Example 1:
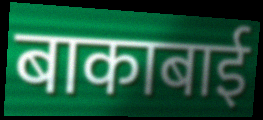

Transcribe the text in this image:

बाकाबाई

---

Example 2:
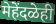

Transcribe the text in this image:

मेहेंदळेही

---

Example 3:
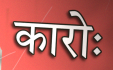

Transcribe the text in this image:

कारोः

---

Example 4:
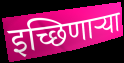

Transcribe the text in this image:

इच्छिणार्‍या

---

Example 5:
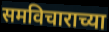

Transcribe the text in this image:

समविचाराच्या